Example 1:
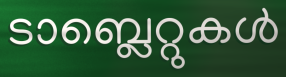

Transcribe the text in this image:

ടാബ്ലെറ്റുകൾ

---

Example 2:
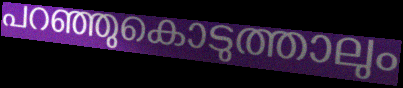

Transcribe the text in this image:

പറഞ്ഞുകൊടുത്താലും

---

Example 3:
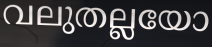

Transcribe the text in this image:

വലുതല്ലയോ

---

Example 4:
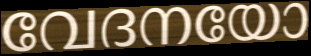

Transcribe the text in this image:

വേദനയോ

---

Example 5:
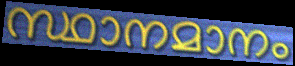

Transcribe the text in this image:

സ്ഥാനമാനം